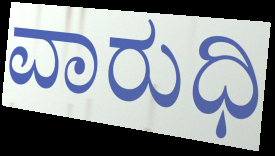
ವಾರುಧಿ